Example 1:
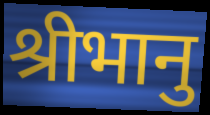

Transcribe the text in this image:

श्रीभानु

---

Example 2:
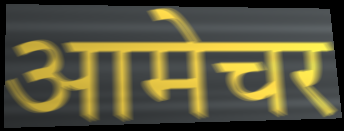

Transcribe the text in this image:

आमेचर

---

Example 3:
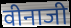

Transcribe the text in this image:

वीनाजी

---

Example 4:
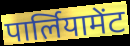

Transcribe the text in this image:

पार्लियामेंट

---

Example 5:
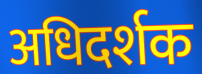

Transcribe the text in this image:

अधिदर्शक